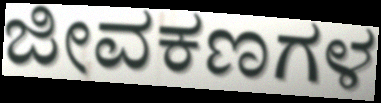
ಜೀವಕಣಗಳ